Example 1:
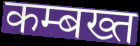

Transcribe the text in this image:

कम्बख्त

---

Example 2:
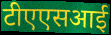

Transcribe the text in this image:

टीएएसआई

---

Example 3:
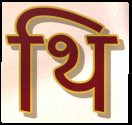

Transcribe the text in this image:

थि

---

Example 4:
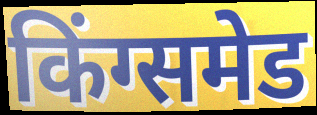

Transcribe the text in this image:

किंग्समेड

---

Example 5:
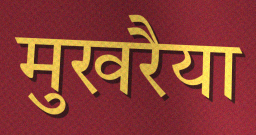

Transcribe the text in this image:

मुखरैया